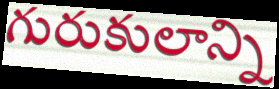
గురుకులాన్ని